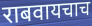
राबवायचाच